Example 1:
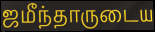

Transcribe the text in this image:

ஜமீந்தாருடைய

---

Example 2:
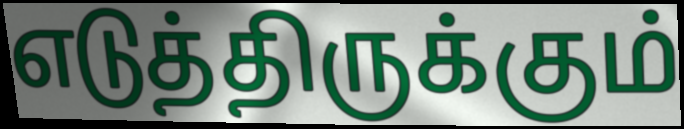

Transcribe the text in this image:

எடுத்திருக்கும்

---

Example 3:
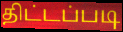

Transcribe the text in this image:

திட்டப்படி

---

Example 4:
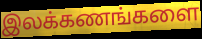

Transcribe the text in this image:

இலக்கணங்களை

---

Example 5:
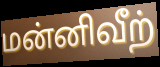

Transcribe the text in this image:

மன்னிவீற்